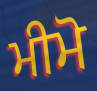
ਮੀਮੋ